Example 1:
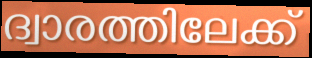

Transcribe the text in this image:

ദ്വാരത്തിലേക്ക്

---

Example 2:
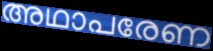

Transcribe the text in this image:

അഥാപരേണ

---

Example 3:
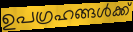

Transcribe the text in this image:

ഉപഗ്രഹങ്ങൾക്ക്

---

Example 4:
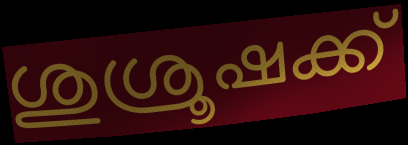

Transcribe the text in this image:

ശുശ്രൂഷക്ക്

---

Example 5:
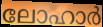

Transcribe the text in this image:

ലോഹാർ